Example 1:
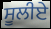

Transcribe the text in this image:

ਸੂਲੀਏ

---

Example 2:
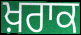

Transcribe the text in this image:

ਖ਼ਰਾਕ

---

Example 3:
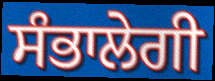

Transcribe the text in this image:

ਸੰਭਾਲੇਗੀ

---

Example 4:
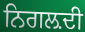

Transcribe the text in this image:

ਨਿਗਲ਼ਦੀ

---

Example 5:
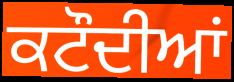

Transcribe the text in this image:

ਕਟੌਦੀਆਂ